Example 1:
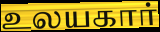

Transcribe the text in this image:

உலயகார்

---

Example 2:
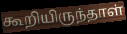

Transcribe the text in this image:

கூறியிருந்தாள்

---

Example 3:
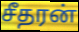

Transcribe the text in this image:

சீதரன்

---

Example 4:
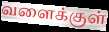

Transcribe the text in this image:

வளைக்குள்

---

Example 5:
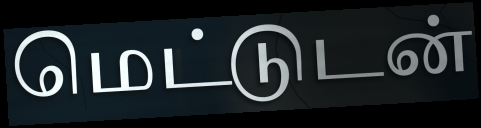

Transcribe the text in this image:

மெட்டுடன்